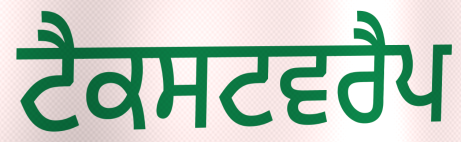
ਟੈਕਸਟਵਰੈਪ